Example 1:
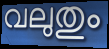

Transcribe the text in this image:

വലുതും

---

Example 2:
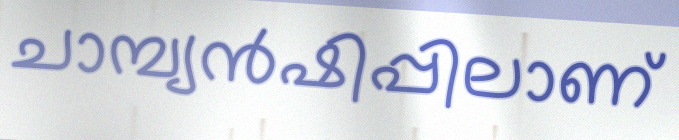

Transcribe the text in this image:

ചാമ്പ്യൻഷിപ്പിലാണ്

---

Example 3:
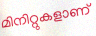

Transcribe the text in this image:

മിനിറ്റുകളാണ്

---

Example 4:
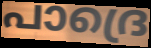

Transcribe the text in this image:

പാദ്രെ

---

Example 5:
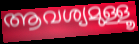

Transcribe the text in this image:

ആവശ്യമുള്ളൂ